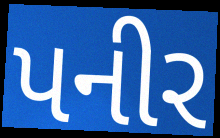
પનીર